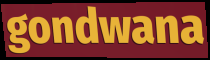
gondwana